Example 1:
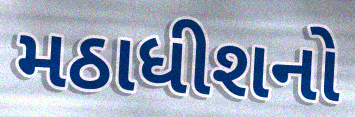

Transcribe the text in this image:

મઠાધીશનો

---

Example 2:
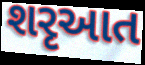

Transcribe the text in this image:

શરૃઆત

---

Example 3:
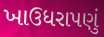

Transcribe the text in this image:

ખાઉધરાપણું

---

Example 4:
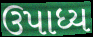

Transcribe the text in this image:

ઉપાધ્ય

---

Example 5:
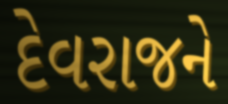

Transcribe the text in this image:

દેવરાજને